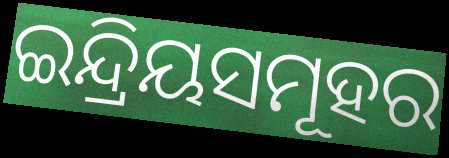
ଇନ୍ଦ୍ରିୟସମୂହର